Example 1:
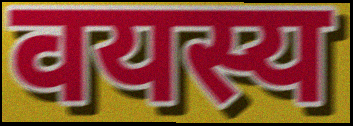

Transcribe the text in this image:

वयस्य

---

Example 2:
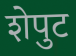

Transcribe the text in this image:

शेपुट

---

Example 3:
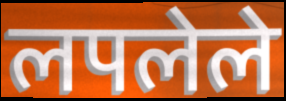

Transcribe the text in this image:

लपलेले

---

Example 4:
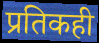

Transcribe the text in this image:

प्रतिकही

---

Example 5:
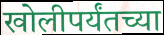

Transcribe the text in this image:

खोलीपर्यंतच्या